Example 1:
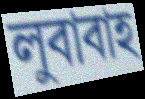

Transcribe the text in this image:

লুবাবাহ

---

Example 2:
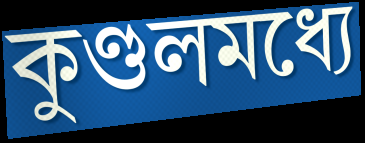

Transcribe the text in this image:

কুণ্ডলমধ্যে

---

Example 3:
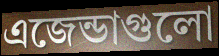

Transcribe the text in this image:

এজেন্ডাগুলো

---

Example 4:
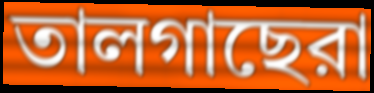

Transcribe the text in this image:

তালগাছেরা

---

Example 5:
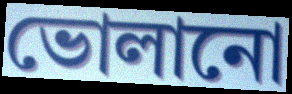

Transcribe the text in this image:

ভোলানো